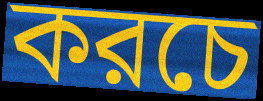
করচে